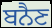
ਬਨੈਣ